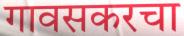
गावसकरचा